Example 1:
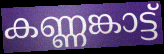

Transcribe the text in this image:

കണ്ണങ്കാട്ട്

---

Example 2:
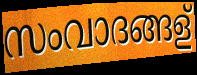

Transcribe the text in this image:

സംവാദങ്ങള്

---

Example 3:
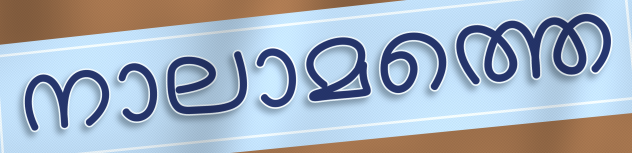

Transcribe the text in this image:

നാലാമത്തെ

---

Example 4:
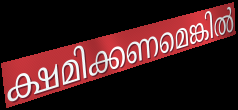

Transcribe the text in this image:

ക്ഷമിക്കണമെങ്കിൽ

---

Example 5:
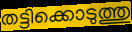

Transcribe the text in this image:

തട്ടിക്കൊടുത്തു